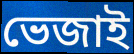
ভেজাই